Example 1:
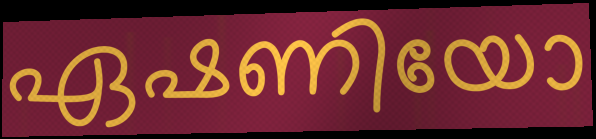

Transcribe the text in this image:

ഏഷണിയോ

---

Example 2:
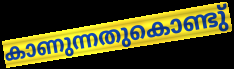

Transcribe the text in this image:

കാണുന്നതുകൊണ്ടു്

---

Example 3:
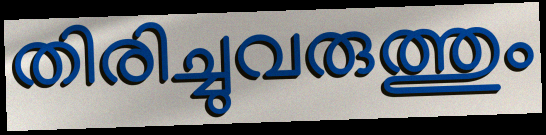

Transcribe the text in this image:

തിരിച്ചുവരുത്തും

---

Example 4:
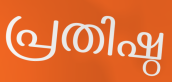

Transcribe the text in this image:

പ്രതിഷ്ഠ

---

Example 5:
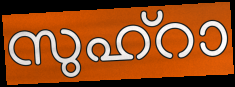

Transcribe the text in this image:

സുഹ്റാ